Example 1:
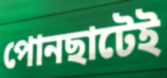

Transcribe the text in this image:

পোনছাটেই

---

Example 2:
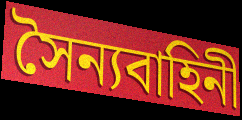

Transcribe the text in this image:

সৈন্যবাহিনী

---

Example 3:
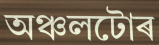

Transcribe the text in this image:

অঞ্চলটোৰ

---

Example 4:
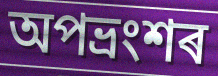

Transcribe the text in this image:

অপভ্ৰংশৰ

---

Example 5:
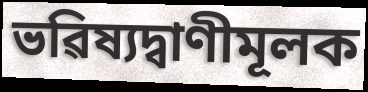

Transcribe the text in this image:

ভৱিষ্যদ্বাণীমূলক